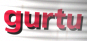
gurtu